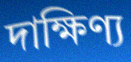
দাক্ষিণ্য